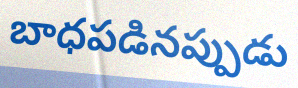
బాధపడినప్పుడు